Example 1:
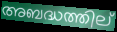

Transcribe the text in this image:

അബദ്ധത്തില്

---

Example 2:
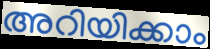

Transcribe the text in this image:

അറിയിക്കാം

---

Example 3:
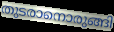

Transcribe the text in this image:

തുടരാനൊരുങ്ങി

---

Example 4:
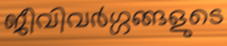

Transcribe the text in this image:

ജീവിവർഗ്ഗങ്ങളുടെ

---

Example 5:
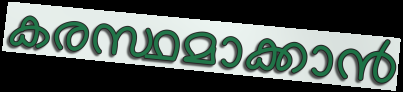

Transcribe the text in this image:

കരസ്ഥമാക്കാൻ